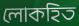
লোকহিত